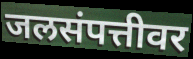
जलसंपत्तीवर